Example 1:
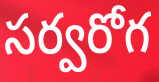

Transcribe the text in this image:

సర్వరోగ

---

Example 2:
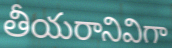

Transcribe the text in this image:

తీయరానివిగా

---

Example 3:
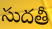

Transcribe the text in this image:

సుదతీ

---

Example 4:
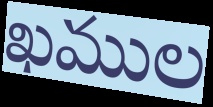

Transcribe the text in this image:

ఖముల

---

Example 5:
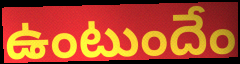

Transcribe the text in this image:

ఉంటుందేం